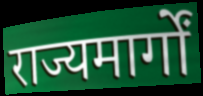
राज्यमार्गों